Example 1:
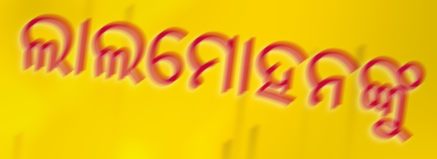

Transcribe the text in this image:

ଲାଲମୋହନଙ୍କୁ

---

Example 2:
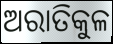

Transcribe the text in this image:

ଅରାତିକୁଳ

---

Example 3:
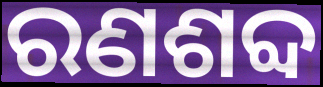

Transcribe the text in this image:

ରଣଶବ୍ଦ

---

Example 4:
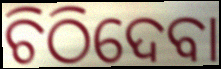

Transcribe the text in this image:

ଚିଠିଦେବା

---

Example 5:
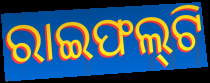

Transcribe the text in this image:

ରାଇଫଲ୍‌ଟି